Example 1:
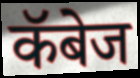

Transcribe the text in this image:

कॅबेज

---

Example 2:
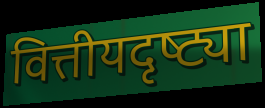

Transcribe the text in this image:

वित्तीयदृष्ट्या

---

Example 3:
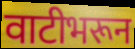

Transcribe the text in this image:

वाटीभरून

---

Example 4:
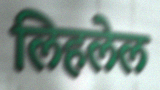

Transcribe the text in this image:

लिहलेल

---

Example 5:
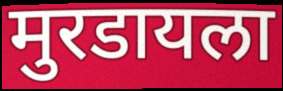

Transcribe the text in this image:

मुरडायला